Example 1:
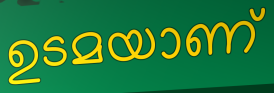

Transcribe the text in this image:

ഉടമയാണ്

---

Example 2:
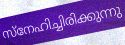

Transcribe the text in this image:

സ്നേഹിച്ചിരിക്കുന്നു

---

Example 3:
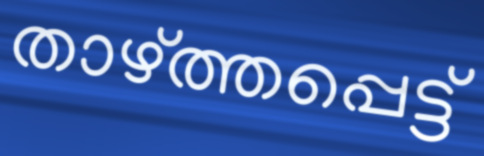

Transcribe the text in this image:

താഴ്ത്തപ്പെട്ട്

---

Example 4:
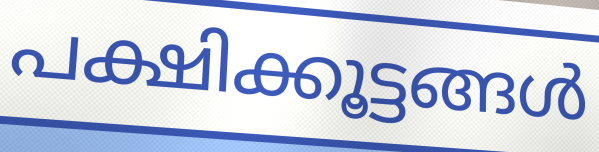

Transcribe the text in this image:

പക്ഷിക്കൂട്ടങ്ങൾ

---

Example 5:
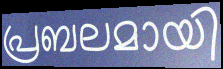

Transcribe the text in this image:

പ്രബലമായി